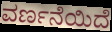
ವರ್ಣನೆಯಿದೆ